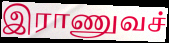
இராணுவச்